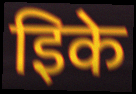
इिके